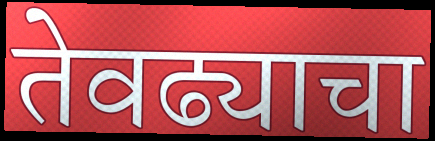
तेवढ्याचा